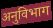
अनुविभाग